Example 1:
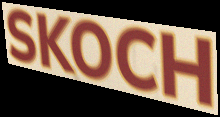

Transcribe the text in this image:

SKOCH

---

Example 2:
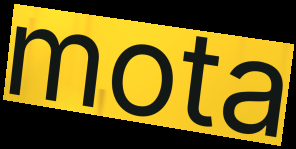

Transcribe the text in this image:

mota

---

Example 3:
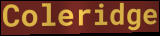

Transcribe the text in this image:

Coleridge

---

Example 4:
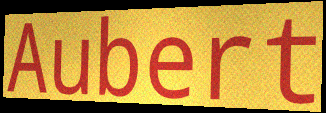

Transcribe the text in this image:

Aubert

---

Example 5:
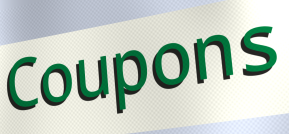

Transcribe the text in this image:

Coupons